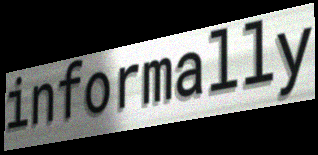
informally